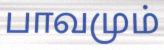
பாவமும்